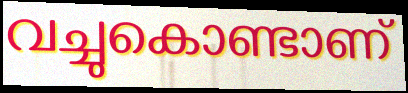
വച്ചുകൊണ്ടാണ്